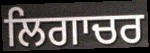
ਲਿਗਾਚਰ